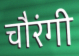
चौरंगी